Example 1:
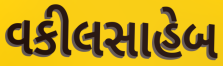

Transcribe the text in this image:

વકીલસાહેબ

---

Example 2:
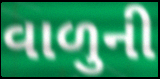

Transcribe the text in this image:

વાળુની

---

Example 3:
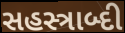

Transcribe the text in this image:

સહસ્ત્રાબ્દી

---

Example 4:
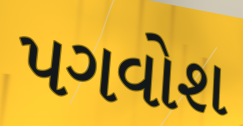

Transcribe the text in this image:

પગવોશ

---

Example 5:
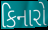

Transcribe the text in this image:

કિનારો